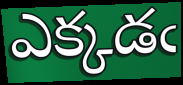
ఎక్కడఁ